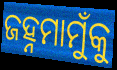
ଜହ୍ନମାମୁଁକୁ